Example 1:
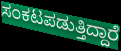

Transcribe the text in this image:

ಸಂಕಟಪಡುತ್ತಿದ್ದಾರೆ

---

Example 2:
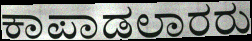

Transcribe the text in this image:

ಕಾಪಾಡಲಾರರು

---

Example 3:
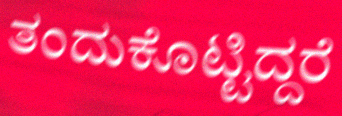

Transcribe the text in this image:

ತಂದುಕೊಟ್ಟಿದ್ದರೆ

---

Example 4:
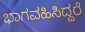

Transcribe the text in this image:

ಭಾಗವಹಿಸಿದ್ದರೆ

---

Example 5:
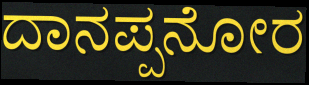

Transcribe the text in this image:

ದಾನಪ್ಪನೋರ